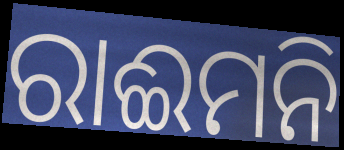
ରାଈମନି